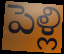
పెళ్లి